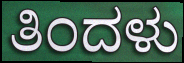
ತಿಂದಳು